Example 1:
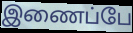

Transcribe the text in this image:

இணைப்பே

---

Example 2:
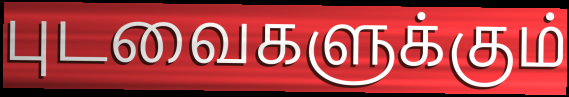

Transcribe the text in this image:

புடவைகளுக்கும்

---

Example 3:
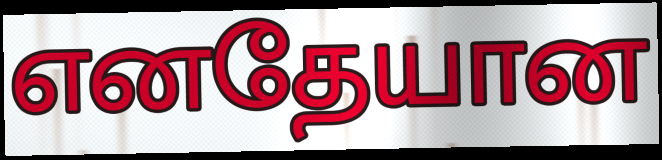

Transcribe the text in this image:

எனதேயான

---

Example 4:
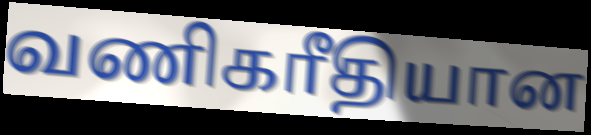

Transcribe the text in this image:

வணிகரீதியான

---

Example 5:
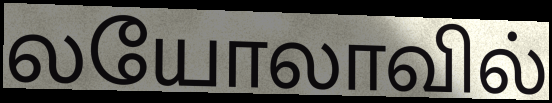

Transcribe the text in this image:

லயோலாவில்